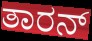
ತಾರನ್